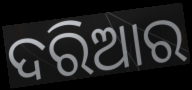
ଦରିଆର